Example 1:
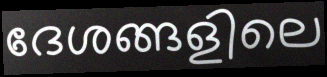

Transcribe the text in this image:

ദേശങ്ങളിലെ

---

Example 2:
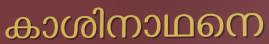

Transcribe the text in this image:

കാശിനാഥനെ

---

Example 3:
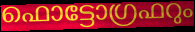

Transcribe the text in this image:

ഫൊട്ടോഗ്രഫറും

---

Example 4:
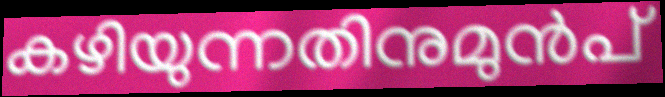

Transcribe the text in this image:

കഴിയുന്നതിനുമുൻപ്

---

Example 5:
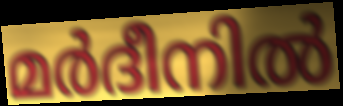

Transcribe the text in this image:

മർദീനിൽ